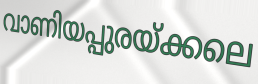
വാണിയപ്പുരയ്ക്കലെ